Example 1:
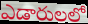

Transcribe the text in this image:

ఎడారులలో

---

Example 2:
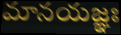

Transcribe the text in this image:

మానయజ్ఞః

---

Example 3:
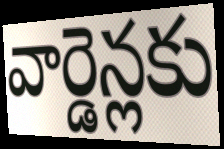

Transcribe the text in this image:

వార్డెన్లకు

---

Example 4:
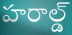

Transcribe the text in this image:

హరాల్డ్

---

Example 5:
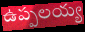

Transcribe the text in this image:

ఉప్పలయ్య